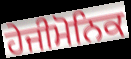
ਹੇਜੀਮੋਨਿਕ